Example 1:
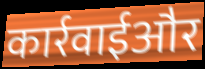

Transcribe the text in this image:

कार्रवाईऔर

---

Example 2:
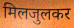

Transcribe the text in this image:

मिलजुलकर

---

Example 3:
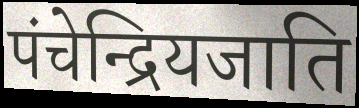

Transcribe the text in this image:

पंचेन्द्रियजाति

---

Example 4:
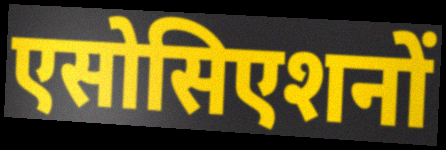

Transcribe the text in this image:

एसोसिएशनों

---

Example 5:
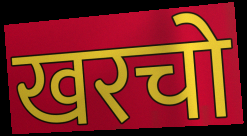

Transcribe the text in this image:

खरचो